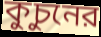
কুচুনের